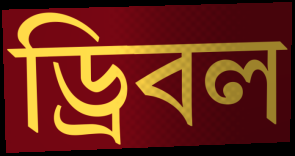
ড্রিবল